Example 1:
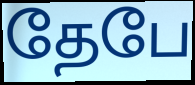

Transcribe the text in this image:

தேபே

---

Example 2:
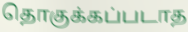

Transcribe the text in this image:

தொகுக்கப்படாத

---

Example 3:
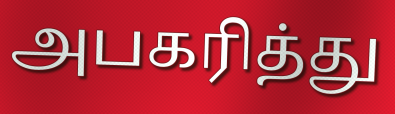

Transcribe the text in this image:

அபகரித்து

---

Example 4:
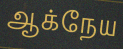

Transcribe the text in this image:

ஆக்நேய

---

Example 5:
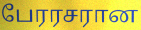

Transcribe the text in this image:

பேரரசரான